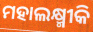
ମହାଲକ୍ଷ୍ମୀକି